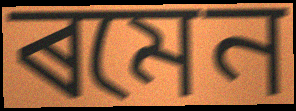
ৰমেন